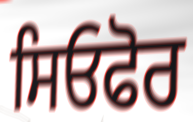
ਸਿਓਫੋਰ